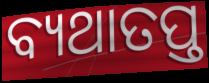
ବ୍ୟଥାତପ୍ତ